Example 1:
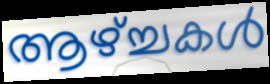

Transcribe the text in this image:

ആഴ്ച്ചകൾ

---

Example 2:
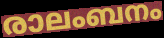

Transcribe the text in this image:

രാലംബനം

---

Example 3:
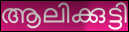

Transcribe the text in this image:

ആലിക്കുട്ടി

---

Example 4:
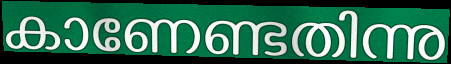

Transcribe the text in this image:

കാണേണ്ടതിന്നു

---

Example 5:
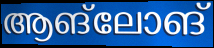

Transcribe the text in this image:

ആങ്‌ലോങ്